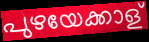
പുഴയേക്കാള്